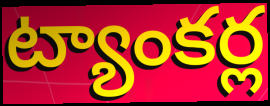
ట్యాంకర్ల